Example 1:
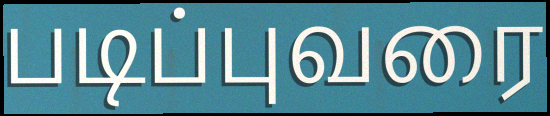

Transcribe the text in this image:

படிப்புவரை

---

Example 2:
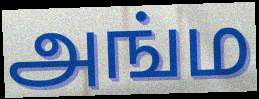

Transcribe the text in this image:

அங்ம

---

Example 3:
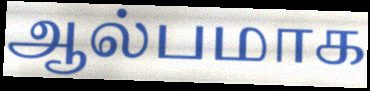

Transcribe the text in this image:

ஆல்பமாக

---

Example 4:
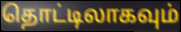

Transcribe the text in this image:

தொட்டிலாகவும்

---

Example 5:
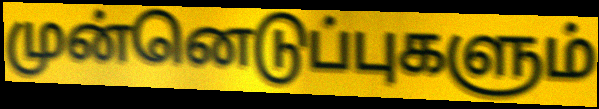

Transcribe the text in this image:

முன்னெடுப்புகளும்